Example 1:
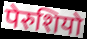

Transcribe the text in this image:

पेरुशियो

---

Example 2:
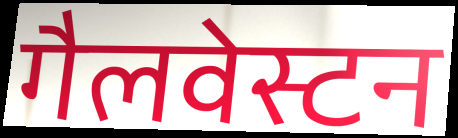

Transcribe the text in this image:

गैलवेस्टन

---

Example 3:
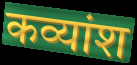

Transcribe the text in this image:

कव्यांश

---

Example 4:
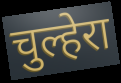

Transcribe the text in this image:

चुल्हेरा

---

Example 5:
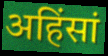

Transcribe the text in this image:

अहिंसां